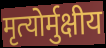
मृत्‍योर्मुक्षीय